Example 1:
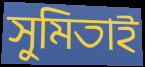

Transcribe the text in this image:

সুমিতাই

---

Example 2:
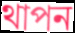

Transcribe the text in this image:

থাপন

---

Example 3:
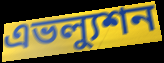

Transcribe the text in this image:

এভল্যুশন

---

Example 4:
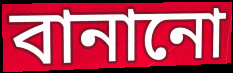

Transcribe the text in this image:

বানানো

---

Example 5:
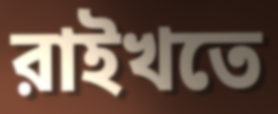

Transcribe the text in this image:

রাইখতে